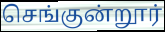
செங்குன்றூர்